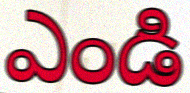
ఎండి